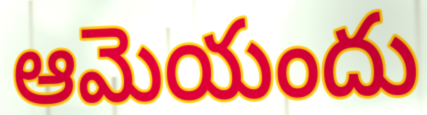
ఆమెయందు